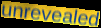
unrevealed